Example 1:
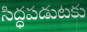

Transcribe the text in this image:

సిద్ధపడుటకు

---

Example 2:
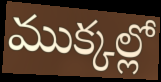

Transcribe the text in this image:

ముక్కల్లో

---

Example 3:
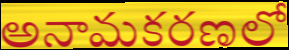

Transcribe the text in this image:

అనామకరణలో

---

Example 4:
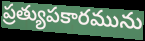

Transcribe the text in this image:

ప్రత్యుపకారమును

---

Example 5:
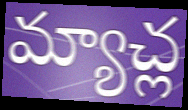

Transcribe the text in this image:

మ్యాచ్ల